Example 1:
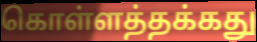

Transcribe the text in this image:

கொள்ளத்தக்கது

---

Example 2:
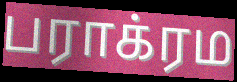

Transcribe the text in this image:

பராக்ரம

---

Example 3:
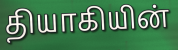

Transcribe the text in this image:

தியாகியின்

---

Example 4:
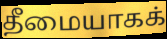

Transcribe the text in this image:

தீமையாகக்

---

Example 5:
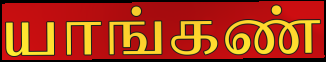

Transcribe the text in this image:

யாங்கண்